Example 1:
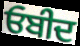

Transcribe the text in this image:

ਓਬੀਦ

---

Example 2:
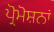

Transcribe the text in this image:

ਪ੍ਰੋਮੋਸ਼ਨਾਂ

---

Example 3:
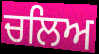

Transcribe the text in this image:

ਚਲਿਅ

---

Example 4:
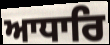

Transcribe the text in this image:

ਆਧਾਰਿ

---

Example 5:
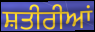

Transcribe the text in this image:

ਸ਼ਤੀਰੀਆਂ